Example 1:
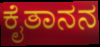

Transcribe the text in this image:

ಕೈತಾನನ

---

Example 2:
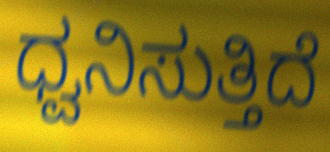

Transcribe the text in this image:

ಧ್ವನಿಸುತ್ತಿದೆ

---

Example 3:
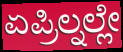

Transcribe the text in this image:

ಏಪ್ರಿಲ್ನಲ್ಲೇ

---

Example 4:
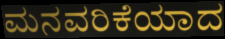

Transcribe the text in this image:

ಮನವರಿಕೆಯಾದ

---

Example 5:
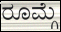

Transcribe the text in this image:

ರೂಮ್ಗೆ